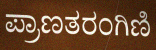
ಪ್ರಾಣತರಂಗಿಣಿ